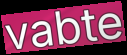
vabte